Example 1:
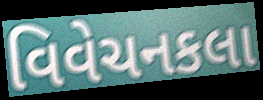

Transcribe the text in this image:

વિવેચનકલા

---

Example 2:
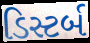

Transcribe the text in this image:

ડિસ્ટર્બ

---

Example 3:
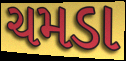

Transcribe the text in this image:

ચમડા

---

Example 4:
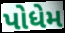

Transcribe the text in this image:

પોધેમ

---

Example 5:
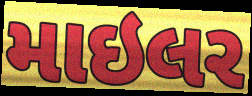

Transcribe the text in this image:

માઇલર